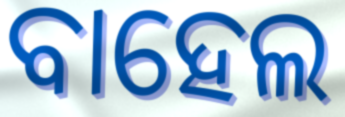
ବାହେଲ